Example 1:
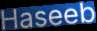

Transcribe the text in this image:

Haseeb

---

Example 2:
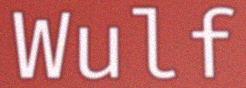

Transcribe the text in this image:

Wulf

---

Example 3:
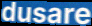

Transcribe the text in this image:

dusare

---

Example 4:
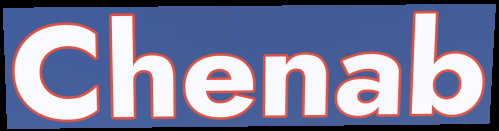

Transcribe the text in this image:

Chenab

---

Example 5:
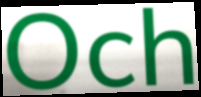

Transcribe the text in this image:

Och